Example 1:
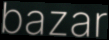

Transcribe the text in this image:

bazar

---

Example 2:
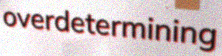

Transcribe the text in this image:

overdetermining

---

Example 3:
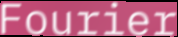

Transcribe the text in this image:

Fourier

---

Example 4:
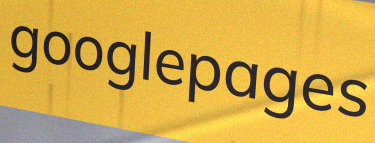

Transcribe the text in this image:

googlepages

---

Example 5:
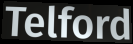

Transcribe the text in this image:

Telford